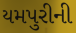
યમપુરીની